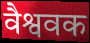
वैश्ववक